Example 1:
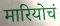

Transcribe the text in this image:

मारियोचं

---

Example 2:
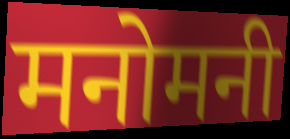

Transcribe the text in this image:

मनोमनी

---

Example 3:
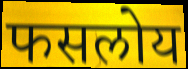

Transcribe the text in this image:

फसलोय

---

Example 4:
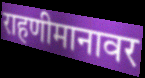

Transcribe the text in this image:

राहणीमानावर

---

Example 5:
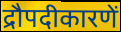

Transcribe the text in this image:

द्रौपदीकारणें